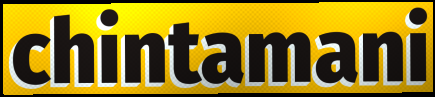
chintamani